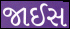
જાઈસ